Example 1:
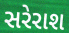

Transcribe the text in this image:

સરેરાશ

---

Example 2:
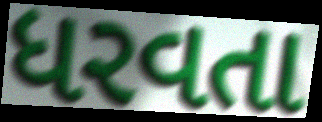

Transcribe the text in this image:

ધરવતા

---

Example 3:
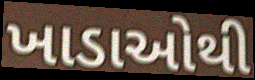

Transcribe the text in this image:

ખાડાઓથી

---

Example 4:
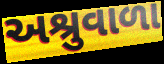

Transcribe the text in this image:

અશ્રુવાળા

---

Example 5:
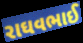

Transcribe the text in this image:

રાઘવભાઈ